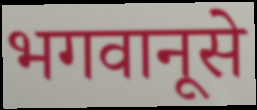
भगवानूसे